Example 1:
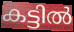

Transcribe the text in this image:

കട്ടിൽ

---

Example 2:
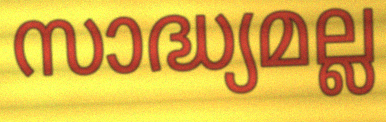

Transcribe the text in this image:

സാദ്ധ്യമല്ല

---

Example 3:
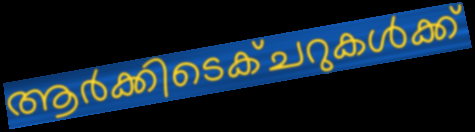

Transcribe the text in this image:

ആർക്കിടെക്ചറുകൾക്ക്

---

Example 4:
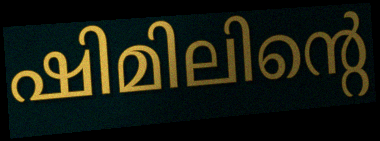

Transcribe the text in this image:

ഷിമിലിന്റെ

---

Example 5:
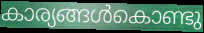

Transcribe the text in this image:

കാര്യങ്ങൾകൊണ്ടു